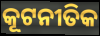
କୂଟନୀତିକ